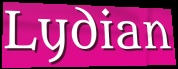
Lydian